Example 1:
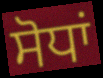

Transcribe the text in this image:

ਸੋਧਾਂ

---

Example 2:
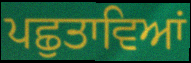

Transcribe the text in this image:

ਪਛੁਤਾਵਿਆਂ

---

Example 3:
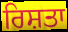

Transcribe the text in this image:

ਰਿਸ਼ਤਾ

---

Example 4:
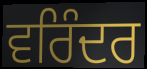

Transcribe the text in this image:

ਵਰਿੰਦਰ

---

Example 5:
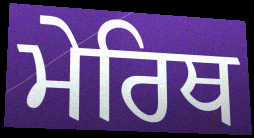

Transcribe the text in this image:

ਮੇਰਿਥ